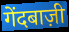
गेंदबाज़ी